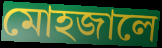
মোহজালে